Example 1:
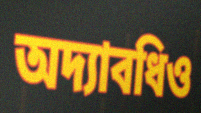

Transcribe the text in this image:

অদ্যাবধিও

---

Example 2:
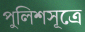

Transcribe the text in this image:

পুলিশসূত্রে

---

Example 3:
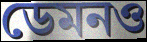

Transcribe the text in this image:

ডেমনও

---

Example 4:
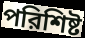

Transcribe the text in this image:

পরিশিষ্ট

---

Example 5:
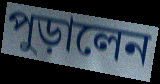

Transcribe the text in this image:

পুড়ালেন